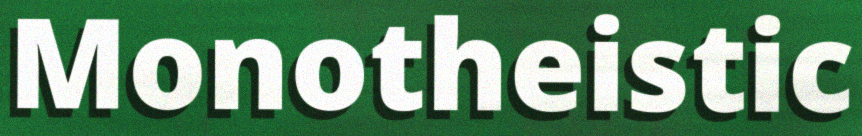
Monotheistic